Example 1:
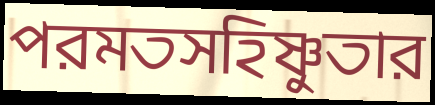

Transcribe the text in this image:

পরমতসহিষ্ণুতার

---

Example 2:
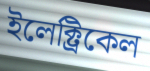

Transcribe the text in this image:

ইলেক্ট্রিকেল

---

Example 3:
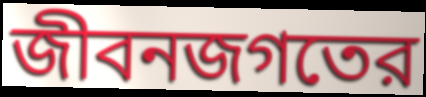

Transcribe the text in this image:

জীবনজগতের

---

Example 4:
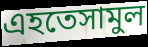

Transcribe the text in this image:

এহতেসামুল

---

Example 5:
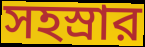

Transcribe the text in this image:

সহস্রার